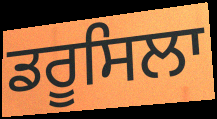
ਡਰੂਸਿਲਾ